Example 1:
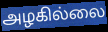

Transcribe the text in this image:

அழகில்லை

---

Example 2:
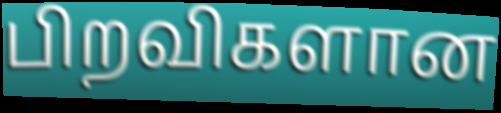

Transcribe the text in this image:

பிறவிகளான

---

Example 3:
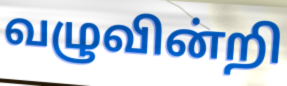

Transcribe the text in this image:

வழுவின்றி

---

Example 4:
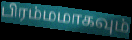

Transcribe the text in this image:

பிரம்மமாகவும்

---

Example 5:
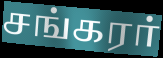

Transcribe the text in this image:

சங்கரர்